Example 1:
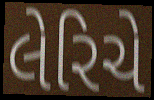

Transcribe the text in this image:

લેરિચે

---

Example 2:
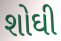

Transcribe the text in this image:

શોઘી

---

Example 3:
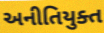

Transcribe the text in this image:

અનીતિયુક્ત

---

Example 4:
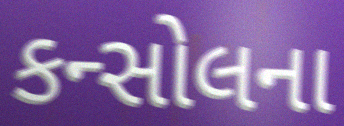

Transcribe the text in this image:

કન્સોલના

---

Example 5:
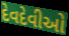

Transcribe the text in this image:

દેવદેવીઓ